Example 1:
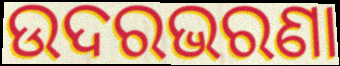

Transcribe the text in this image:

ଉଦରଭରଣା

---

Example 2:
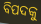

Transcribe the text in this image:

ବିପଦକୁ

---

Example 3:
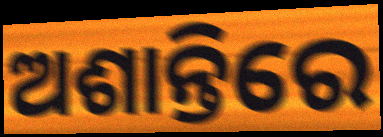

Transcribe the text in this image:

ଅଶାନ୍ତିରେ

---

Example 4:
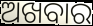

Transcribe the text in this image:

ଅଖବାର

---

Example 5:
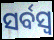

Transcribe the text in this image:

ସର୍ବସ୍ୱ